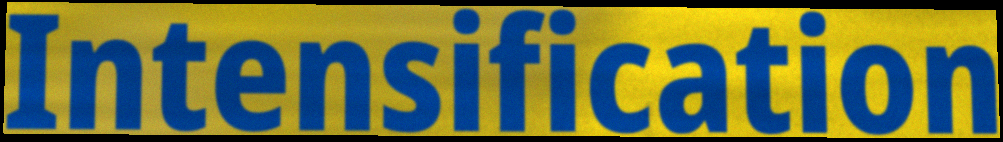
Intensification